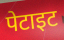
पेटाइट